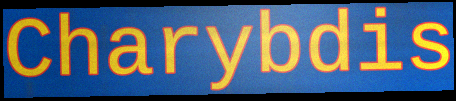
Charybdis